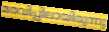
മരവിപ്പിലായിരുന്നു